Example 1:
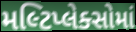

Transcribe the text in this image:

મલ્ટિપ્લેક્સોમાં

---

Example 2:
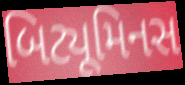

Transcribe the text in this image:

બિટ્યૂમિનસ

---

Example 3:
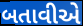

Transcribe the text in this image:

બતાવીએ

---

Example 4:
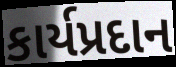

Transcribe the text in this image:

કાર્યપ્રદાન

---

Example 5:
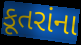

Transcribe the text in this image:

કૂતરાંના